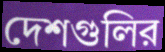
দেশগুলির